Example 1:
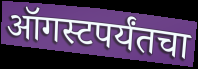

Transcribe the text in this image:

ऑगस्टपर्यंतचा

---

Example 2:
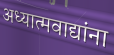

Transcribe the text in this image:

अध्यात्मवाद्यांना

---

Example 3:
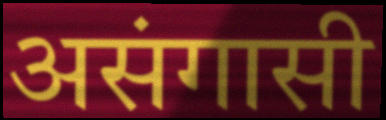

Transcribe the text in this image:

असंगासी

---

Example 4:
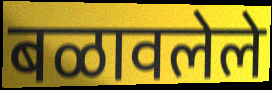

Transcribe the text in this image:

बळावलेले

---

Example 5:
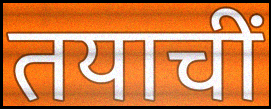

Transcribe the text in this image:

तयाचीं